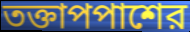
তক্তাপপাশের